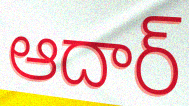
ఆదార్